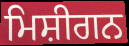
ਮਿਸ਼ੀਗਨ